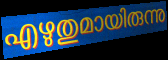
എഴുതുമായിരുന്നു